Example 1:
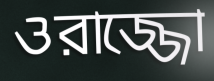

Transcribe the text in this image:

ওরাজ্জো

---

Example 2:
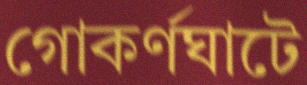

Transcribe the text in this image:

গোকর্ণঘাটে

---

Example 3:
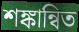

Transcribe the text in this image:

শঙ্কান্বিত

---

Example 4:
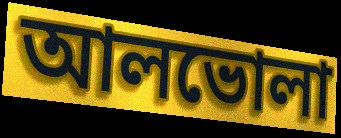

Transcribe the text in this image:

আলভোলা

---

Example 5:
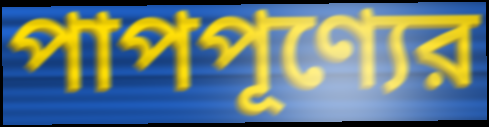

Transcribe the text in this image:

পাপপূণ্যের